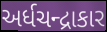
અર્ધચન્દ્રાકાર